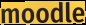
moodle